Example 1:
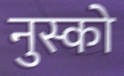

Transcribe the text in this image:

नुस्को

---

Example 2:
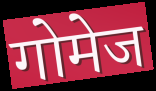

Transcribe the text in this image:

गोमेज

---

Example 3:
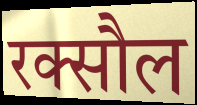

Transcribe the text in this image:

रक्‍सौल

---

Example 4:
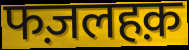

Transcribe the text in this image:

फज़लहक़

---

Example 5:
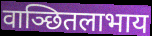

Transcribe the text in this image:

वाञ्छितलाभाय